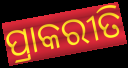
ପ୍ରାକରୀତି